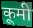
कूमी